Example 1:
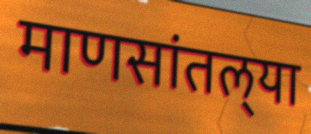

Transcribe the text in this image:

माणसांतल्या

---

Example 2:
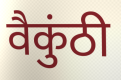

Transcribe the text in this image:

वैकुंठी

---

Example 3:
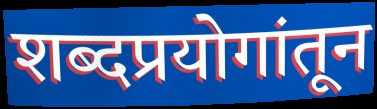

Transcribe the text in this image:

शब्दप्रयोगांतून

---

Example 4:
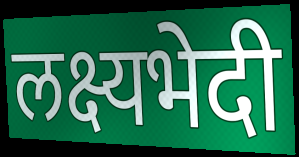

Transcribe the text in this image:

लक्ष्यभेदी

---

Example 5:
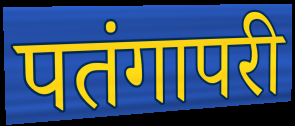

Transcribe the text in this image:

पतंगापरी